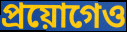
প্রয়োগেও